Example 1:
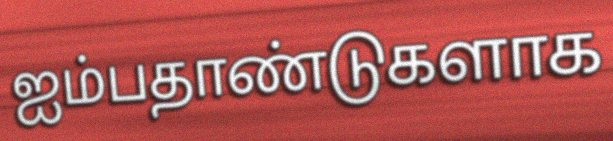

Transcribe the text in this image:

ஐம்பதாண்டுகளாக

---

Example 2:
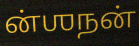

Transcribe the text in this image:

ன்ஶநன்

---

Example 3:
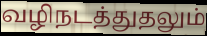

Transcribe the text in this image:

வழிநடத்துதலும்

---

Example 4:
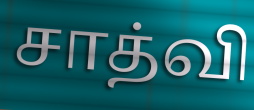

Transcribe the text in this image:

சாத்வி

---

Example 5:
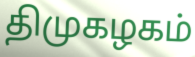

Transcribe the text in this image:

திமுகழகம்